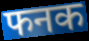
फनक